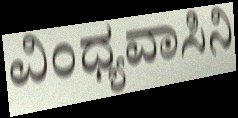
ವಿಂಧ್ಯವಾಸಿನಿ